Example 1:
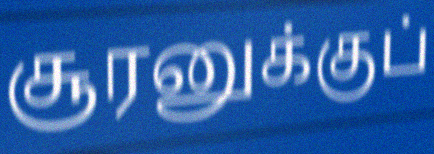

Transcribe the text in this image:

சூரனுக்குப்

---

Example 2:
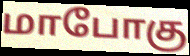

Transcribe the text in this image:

மாபோகு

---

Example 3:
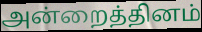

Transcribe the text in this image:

அன்றைத்தினம்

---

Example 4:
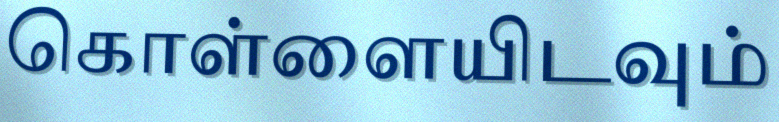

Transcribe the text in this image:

கொள்ளையிடவும்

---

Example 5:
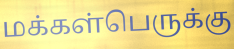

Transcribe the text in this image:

மக்கள்பெருக்கு